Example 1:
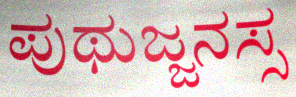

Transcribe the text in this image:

ಪುಥುಜ್ಜನಸ್ಸ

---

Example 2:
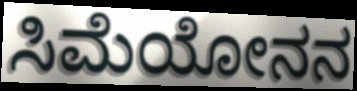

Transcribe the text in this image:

ಸಿಮೆಯೋನನ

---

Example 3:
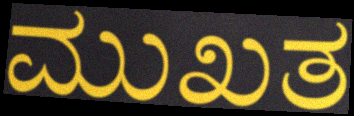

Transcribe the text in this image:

ಮುಖತ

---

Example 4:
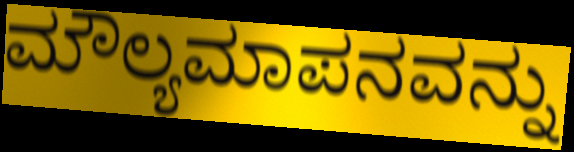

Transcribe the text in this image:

ಮೌಲ್ಯಮಾಪನವನ್ನು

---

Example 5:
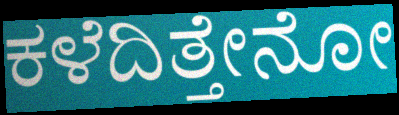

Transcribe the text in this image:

ಕಳೆದಿತ್ತೇನೋ